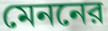
মেননের